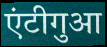
एंटीगुआ